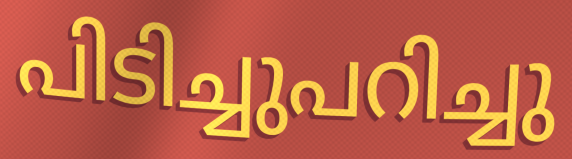
പിടിച്ചുപറിച്ചു